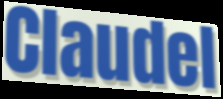
Claudel